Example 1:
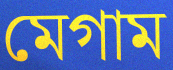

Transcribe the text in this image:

মেগাম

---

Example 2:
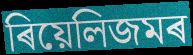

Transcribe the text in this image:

ৰিয়েলিজমৰ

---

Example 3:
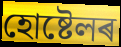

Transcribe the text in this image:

হোষ্টেলৰ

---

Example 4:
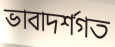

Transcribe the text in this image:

ভাবাদৰ্শগত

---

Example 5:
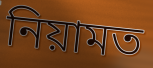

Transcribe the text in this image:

নিয়ামত